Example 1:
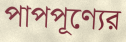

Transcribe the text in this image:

পাপপূণ্যের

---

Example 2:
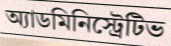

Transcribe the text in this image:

অ্যাডমিনিস্ট্রেটিভ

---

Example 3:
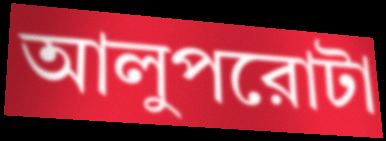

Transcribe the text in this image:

আলুপরোটা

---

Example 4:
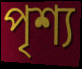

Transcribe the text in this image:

পৃশ্য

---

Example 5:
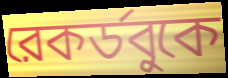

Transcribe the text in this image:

রেকর্ডবুকে